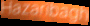
Hazaribagh